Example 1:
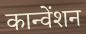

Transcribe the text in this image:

कान्वेंशन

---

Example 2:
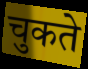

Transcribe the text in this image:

चुकते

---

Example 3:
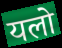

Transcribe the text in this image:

यलो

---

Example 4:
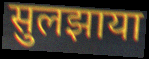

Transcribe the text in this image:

सुलझाया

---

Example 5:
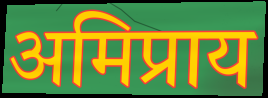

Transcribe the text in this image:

अमिप्राय